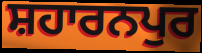
ਸ਼ਹਾਰਨਪੁਰ